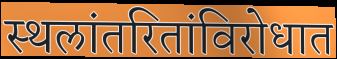
स्थलांतरितांविरोधात